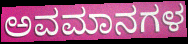
ಅವಮಾನಗಳ